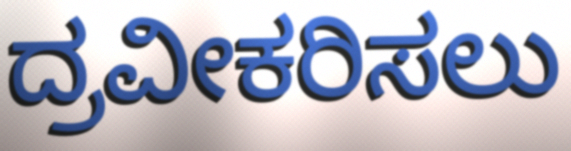
ದ್ರವೀಕರಿಸಲು